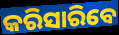
କରିସାରିବେ